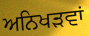
ਅਨਿਖੜਵਾਂ